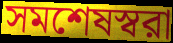
সমশেষস্বরা